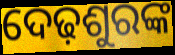
ଦେଢ଼ଶୁରଙ୍କ